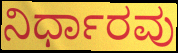
ನಿರ್ಧಾರವು